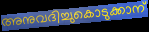
അനുവദിച്ചുകൊടുക്കാന്